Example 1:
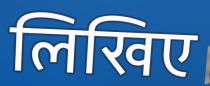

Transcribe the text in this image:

लिखिए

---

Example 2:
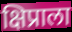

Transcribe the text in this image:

क्षिप्राला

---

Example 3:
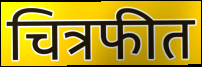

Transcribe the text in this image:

चित्रफीत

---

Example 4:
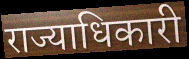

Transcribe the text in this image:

राज्याधिकारी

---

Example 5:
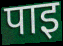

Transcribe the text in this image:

पाइ